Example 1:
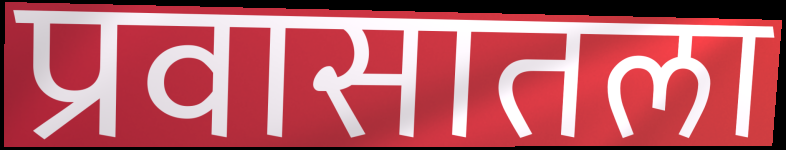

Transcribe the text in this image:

प्रवासातला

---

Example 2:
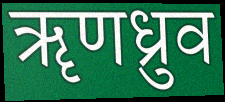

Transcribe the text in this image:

ॠणध्रुव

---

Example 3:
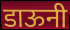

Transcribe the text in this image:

डाऊनी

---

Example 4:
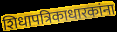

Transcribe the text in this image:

शिधापत्रिकाधारकांना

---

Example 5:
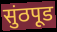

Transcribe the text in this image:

सुंठपूड